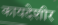
कायदेशीर